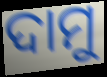
ଦାମୁ